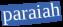
paraiah